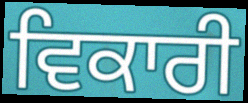
ਵਿਕਾਰੀ